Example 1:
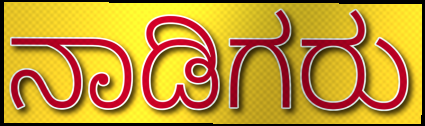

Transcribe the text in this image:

ನಾಡಿಗರು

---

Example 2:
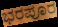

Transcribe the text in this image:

ಭರಪೂರ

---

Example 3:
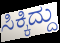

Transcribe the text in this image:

ಸಿಕ್ಕಿದ್ದು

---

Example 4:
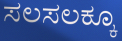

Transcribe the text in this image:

ಸಲಸಲಕ್ಕೂ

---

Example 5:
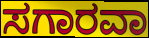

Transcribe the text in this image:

ಸಗಾರವಾ